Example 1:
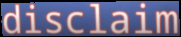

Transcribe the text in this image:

disclaim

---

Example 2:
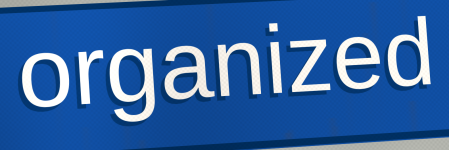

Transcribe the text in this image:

organized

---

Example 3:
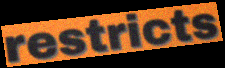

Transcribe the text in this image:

restricts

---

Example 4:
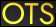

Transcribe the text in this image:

OTS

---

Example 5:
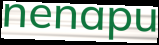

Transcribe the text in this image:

nenapu